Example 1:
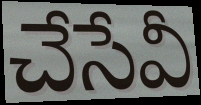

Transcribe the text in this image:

చేసేవీ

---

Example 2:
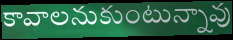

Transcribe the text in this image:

కావాలనుకుంటున్నావు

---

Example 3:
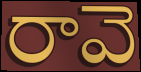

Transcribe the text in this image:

రావె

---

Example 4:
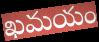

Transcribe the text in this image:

ఖమయం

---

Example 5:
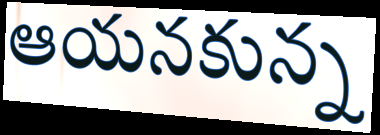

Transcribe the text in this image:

ఆయనకున్న